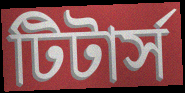
টিটার্স